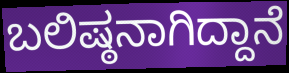
ಬಲಿಷ್ಠನಾಗಿದ್ದಾನೆ